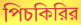
পিচকিরির